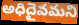
అధిదైవమని